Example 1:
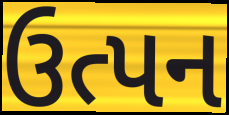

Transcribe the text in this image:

ઉત્પન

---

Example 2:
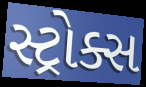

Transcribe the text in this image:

સ્ટ્રોક્સ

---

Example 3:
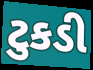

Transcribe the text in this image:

ટુકડી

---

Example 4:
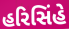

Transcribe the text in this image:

હરિસિંહે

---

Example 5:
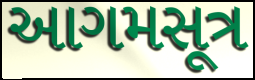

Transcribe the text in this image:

આગમસૂત્ર